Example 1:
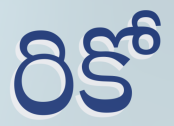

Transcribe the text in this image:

రికో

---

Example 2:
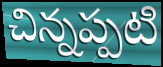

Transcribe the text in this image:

చిన్నప్పటి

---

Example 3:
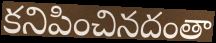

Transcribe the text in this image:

కనిపించినదంతా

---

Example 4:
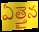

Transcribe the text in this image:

ఏత్తైన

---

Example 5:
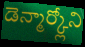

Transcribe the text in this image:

డెన్మార్క్లోని